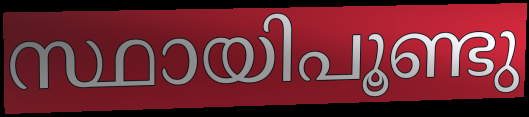
സ്ഥായിപൂണ്ടു